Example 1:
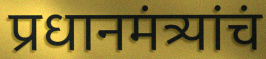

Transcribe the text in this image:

प्रधानमंत्र्यांचं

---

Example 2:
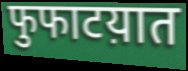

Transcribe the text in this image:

फुफाटय़ात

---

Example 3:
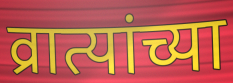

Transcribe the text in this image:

व्रात्यांच्या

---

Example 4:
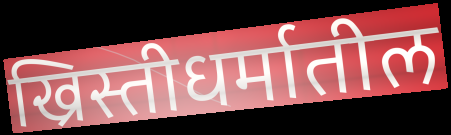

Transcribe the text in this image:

ख्रिस्तीधर्मातील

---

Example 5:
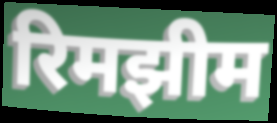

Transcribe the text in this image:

रिमझीम